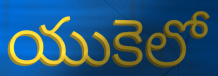
యుకెలో